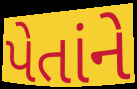
પેતાંને